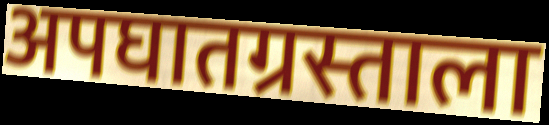
अपघातग्रस्ताला